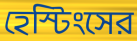
হেস্টিংসের